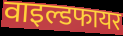
वाइल्डफायर